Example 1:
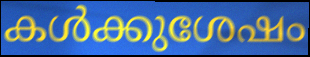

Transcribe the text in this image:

കൾക്കുശേഷം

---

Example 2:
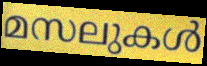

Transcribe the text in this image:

മസലുകൾ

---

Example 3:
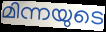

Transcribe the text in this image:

മിന്നയുടെ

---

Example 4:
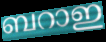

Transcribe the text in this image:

ബറാഇ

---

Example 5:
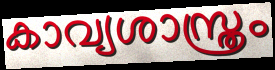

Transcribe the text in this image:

കാവ്യശാസ്ത്രം